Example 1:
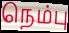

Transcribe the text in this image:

நெம்பு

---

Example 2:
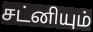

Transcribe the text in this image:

சட்னியும்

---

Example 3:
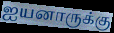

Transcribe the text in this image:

ஐயனாருக்கு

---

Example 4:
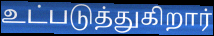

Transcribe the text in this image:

உட்படுத்துகிறார்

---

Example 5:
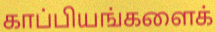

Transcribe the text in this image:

காப்பியங்களைக்